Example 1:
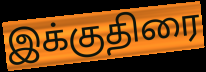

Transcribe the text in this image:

இக்குதிரை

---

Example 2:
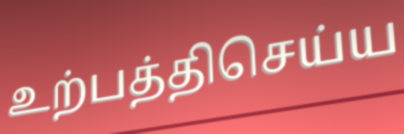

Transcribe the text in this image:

உற்பத்திசெய்ய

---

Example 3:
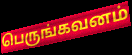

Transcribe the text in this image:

பெருங்கவனம்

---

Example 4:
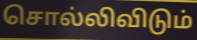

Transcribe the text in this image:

சொல்லிவிடும்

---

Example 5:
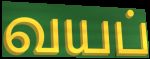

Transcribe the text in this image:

வயப்